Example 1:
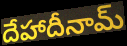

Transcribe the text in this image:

దేహాదీనామ్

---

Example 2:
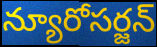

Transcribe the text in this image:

న్యూరోసర్జన్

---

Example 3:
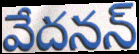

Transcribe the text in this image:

వేదనన్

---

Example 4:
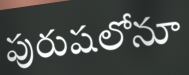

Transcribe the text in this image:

పురుషలోనూ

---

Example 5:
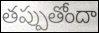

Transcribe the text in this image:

తప్పుతోందా